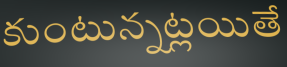
కుంటున్నట్లయితే